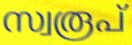
സ്വരൂപ്